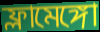
ফ্লামেঙ্গো